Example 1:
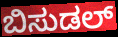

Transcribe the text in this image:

ಬಿಸುಡಲ್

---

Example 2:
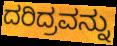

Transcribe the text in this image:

ದರಿದ್ರವನ್ನು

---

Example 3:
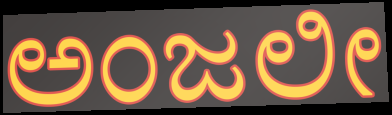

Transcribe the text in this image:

ಅಂಜಲೀ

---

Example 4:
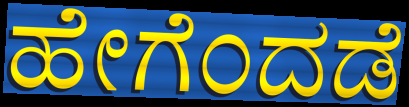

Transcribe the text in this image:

ಹೇಗೆಂದಡೆ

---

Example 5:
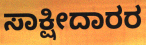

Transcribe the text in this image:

ಸಾಕ್ಷೀದಾರರ